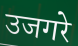
उजगरे